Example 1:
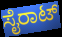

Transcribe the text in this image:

ಸೈರಾಟ್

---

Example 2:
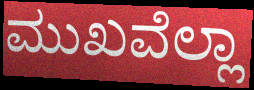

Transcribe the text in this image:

ಮುಖವೆಲ್ಲಾ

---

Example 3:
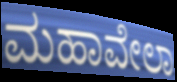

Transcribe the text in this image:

ಮಹಾವೇಲಾ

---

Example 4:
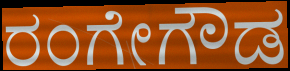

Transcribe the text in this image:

ರಂಗೇಗೌಡ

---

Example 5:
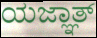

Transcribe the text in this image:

ಯಜ್ಞಾತ್